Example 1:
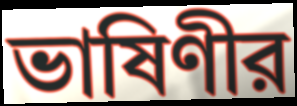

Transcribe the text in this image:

ভাষিণীর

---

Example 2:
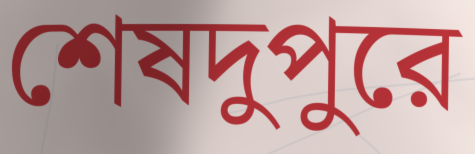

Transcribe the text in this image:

শেষদুপুরে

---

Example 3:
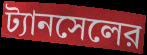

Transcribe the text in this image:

ট্যানসেলের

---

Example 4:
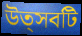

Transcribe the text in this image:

উত্সবটি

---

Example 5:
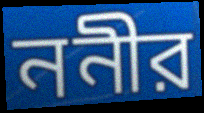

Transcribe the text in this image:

ননীর